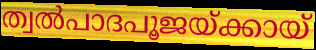
ത്വൽപാദപൂജയ്ക്കായ്